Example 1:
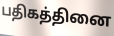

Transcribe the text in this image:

பதிகத்தினை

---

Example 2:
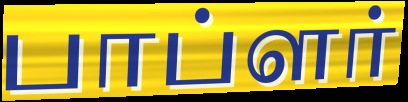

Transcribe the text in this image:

பாப்ளர்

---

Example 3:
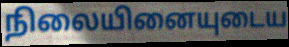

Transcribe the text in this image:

நிலையினையுடைய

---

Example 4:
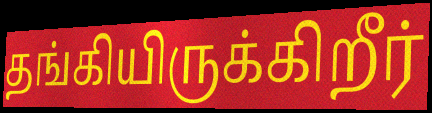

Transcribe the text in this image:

தங்கியிருக்கிறீர்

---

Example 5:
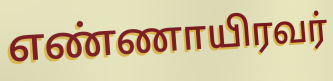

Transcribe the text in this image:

எண்ணாயிரவர்